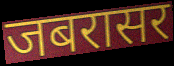
जबरासर